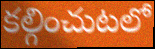
కల్గించుటలో